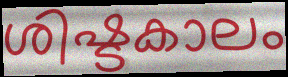
ശിഷ്ടകാലം